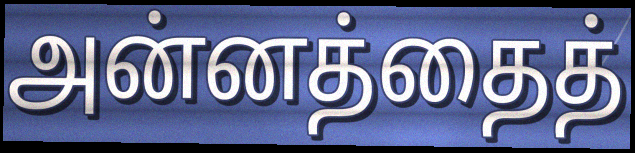
அன்னத்தைத்